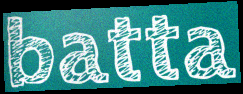
batta